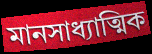
মানসাধ্যাত্মিক